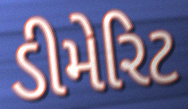
ડીમેરિટ